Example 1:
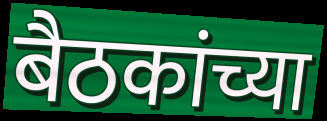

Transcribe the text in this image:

बैठकांच्या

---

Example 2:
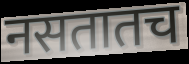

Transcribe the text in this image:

नसतातच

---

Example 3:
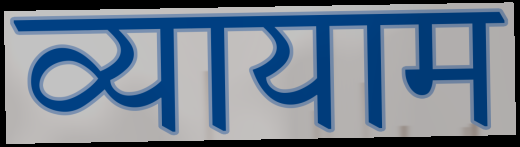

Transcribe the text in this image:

व्यायाम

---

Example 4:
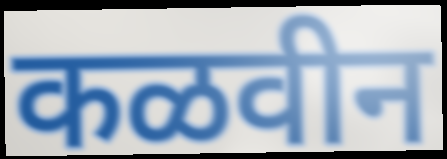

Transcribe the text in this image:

कळवीन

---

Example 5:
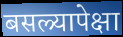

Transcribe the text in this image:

बसल्यापेक्षा